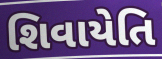
શિવાયેતિ